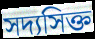
সদ্যসিক্ত